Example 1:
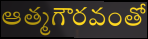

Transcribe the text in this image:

ఆత్మగౌరవంతో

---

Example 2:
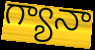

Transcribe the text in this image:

గ్యానా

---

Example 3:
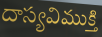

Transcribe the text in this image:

దాస్యవిముక్తి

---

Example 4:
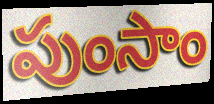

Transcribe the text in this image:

పుంసాం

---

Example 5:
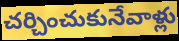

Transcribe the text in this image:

చర్చించుకునేవాళ్లు